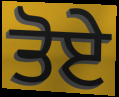
ਤੋਏ